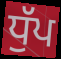
ਧੁੱਪ